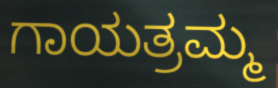
ಗಾಯತ್ರಮ್ಮ